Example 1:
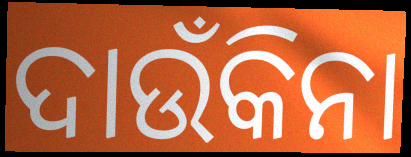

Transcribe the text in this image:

ଦାଉଁକିନା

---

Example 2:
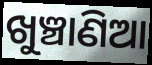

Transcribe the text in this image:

ଖୁଞ୍ଚାଣିଆ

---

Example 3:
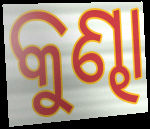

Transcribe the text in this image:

କୁଣ୍ଢା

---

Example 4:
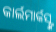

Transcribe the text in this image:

କାର୍ଲମାର୍କସ୍ଙ୍କ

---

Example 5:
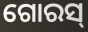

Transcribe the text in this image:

ଗୋରସ୍